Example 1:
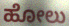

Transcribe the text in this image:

ಹೋಲು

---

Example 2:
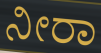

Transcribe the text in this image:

ನೀರಾ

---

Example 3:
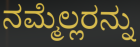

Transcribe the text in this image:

ನಮ್ಮೆಲ್ಲರನ್ನು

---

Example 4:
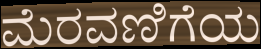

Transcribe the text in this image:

ಮೆರವಣಿಗೆಯ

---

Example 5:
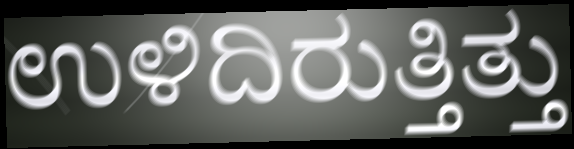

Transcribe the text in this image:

ಉಳಿದಿರುತ್ತಿತ್ತು